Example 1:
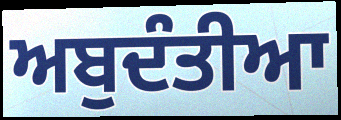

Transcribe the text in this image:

ਅਬੁਦੰਤੀਆ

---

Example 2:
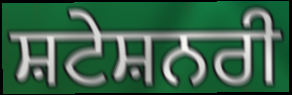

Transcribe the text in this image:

ਸ਼ਟੇਸ਼ਨਰੀ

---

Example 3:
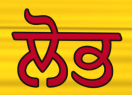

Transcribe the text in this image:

ਲੋਭ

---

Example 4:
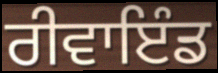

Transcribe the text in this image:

ਰੀਵਾਇੰਡ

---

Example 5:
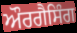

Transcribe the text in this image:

ਔਰਗੈਸਿੰਗ